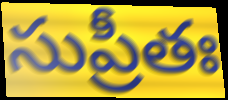
సుప్రీతః